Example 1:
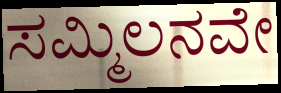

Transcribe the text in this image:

ಸಮ್ಮಿಲನವೇ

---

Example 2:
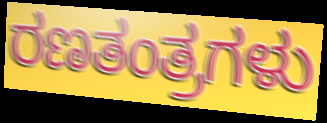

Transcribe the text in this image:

ರಣತಂತ್ರಗಳು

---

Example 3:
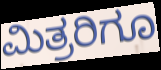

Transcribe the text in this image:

ಮಿತ್ರರಿಗೂ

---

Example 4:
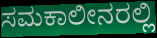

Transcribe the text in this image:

ಸಮಕಾಲೀನರಲ್ಲಿ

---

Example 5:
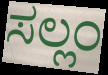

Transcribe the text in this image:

ಸಲ್ಲಂ